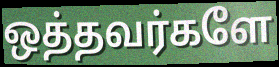
ஒத்தவர்களே